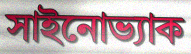
সাইনোভ্যাক